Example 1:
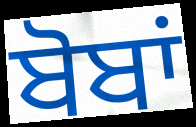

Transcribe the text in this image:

ਬੋਬਾਂ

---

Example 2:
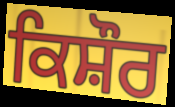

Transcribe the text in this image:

ਕਿਸ਼ੌਰ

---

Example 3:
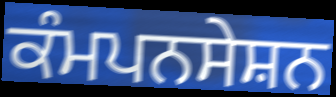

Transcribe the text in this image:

ਕੰਮਪਨਸੇਸ਼ਨ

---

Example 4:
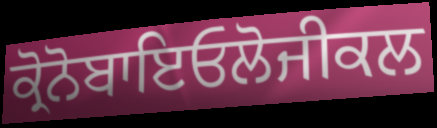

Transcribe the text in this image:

ਕ੍ਰੋਨੋਬਾਇਓਲੋਜੀਕਲ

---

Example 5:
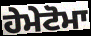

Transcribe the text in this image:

ਹੇਮੇਟੋਮਾ